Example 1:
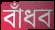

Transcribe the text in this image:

বাঁধব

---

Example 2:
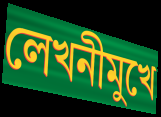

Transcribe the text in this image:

লেখনীমুখে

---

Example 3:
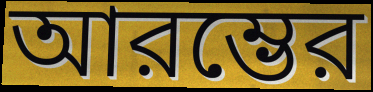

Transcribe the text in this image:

আরম্ভের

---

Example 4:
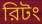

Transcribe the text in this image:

রিটং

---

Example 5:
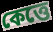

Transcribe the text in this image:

কেত্তে